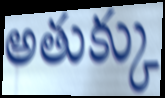
అతుక్కు